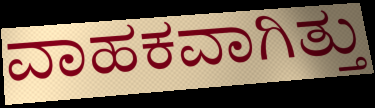
ವಾಹಕವಾಗಿತ್ತು